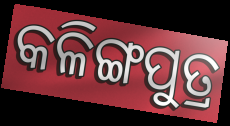
କଳିଙ୍ଗପୁତ୍ର